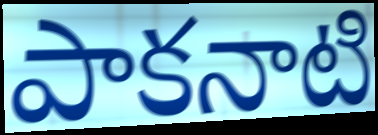
పాకనాటి